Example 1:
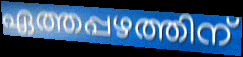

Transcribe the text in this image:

ഏത്തപ്പഴത്തിന്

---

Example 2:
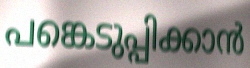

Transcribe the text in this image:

പങ്കെടുപ്പിക്കാൻ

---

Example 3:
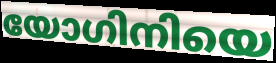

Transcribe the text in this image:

യോഗിനിയെ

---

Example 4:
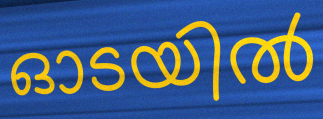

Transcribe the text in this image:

ഓടയിൽ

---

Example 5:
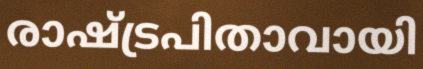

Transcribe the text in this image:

രാഷ്ട്രപിതാവായി